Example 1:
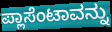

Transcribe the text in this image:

ಪ್ಲಾಸೆಂಟಾವನ್ನು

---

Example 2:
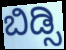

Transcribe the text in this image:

ಬಿಡ್ಸಿ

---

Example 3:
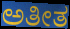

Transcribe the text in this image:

ಅತೀತ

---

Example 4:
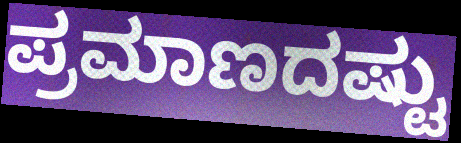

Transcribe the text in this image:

ಪ್ರಮಾಣದಷ್ಟು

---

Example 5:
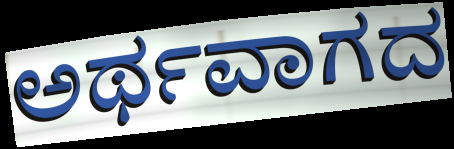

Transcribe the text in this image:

ಅರ್ಥವಾಗದ